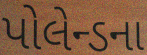
પોલેન્ડના